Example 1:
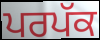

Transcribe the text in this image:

ਪਰਪੱਕ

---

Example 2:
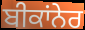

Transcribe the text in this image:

ਬੀਕਾਂਨੇਰ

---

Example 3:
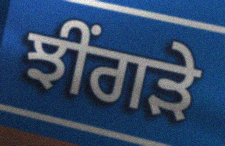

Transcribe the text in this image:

ਝੀਂਗੜੇ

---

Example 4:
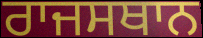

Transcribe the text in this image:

ਰਾਜਸਥਾਨ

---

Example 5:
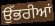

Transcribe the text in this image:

ਉੱਭਰੀਆਂ